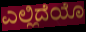
ಎಲ್ಲಿದೆಯೊ